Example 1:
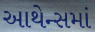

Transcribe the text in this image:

આથેન્સમાં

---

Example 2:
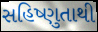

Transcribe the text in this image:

સહિષ્ણુતાથી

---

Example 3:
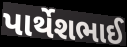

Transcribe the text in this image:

પાર્થેશભાઈ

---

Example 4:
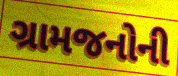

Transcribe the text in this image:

ગ્રામજનોની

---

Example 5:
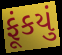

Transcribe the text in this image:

ફૂંકયું